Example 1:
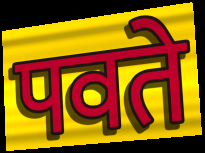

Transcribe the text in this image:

पवते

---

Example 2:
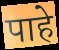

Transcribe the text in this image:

पाहे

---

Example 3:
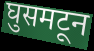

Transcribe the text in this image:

घुसमटून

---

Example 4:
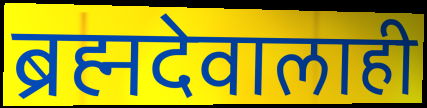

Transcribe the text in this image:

ब्रह्मदेवालाही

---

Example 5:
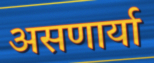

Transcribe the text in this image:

असणार्या